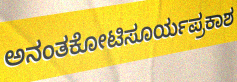
ಅನಂತಕೋಟಿಸೂರ್ಯಪ್ರಕಾಶ